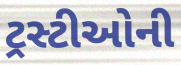
ટ્રસ્ટીઓની